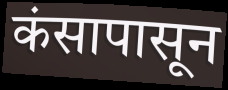
कंसापासून